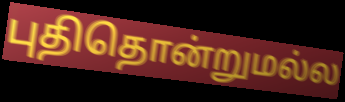
புதிதொன்றுமல்ல